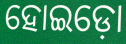
ହୋଇଡ଼ୋ